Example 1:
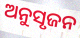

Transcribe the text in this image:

ଅନୁସୃଜନ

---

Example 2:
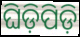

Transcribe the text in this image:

ଘିଡ଼ିପିଡ଼ି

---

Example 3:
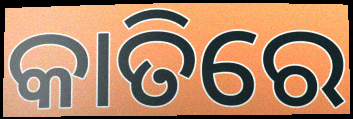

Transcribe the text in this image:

କାତିରେ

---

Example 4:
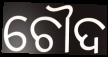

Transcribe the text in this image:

ଚୌଦ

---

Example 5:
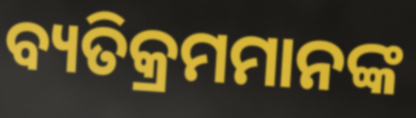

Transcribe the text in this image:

ବ୍ୟତିକ୍ରମମାନଙ୍କ